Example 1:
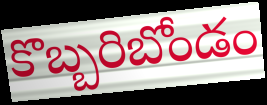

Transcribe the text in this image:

కొబ్బరిబోండం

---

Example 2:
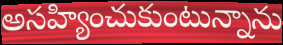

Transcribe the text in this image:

అసహ్యించుకుంటున్నాను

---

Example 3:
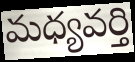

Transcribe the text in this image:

మధ్యవర్తి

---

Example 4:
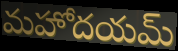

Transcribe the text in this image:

మహోదయమ్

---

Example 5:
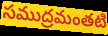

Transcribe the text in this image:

సముద్రమంతటి